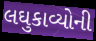
લઘુકાવ્યોની